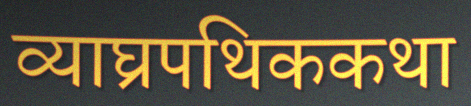
व्याघ्रपथिककथा